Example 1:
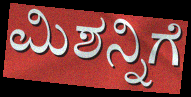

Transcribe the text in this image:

ಮಿಶನ್ನಿಗೆ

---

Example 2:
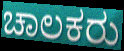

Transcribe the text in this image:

ಚಾಲಕರು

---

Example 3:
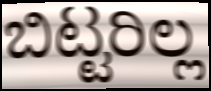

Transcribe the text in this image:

ಬಿಟ್ಟರಿಲ್ಲ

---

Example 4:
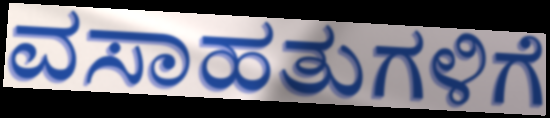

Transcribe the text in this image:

ವಸಾಹತುಗಳಿಗೆ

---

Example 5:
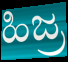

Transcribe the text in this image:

ಹಿಜ್ರ